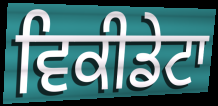
ਵਿਕੀਡੇਟਾ